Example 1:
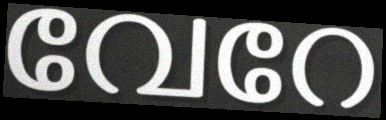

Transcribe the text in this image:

വേറേ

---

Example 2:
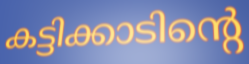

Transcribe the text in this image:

കട്ടിക്കാടിന്റെ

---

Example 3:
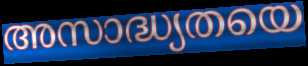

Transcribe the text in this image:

അസാദ്ധ്യതയെ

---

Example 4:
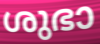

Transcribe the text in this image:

ശുഭാ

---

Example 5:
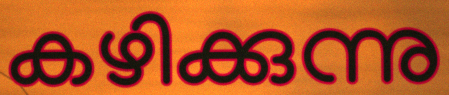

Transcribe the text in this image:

കഴിക്കുന്നു